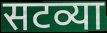
सटव्या